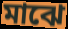
মাঝে